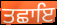
ਤਛਾਇ